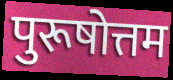
पुरूषोत्तम